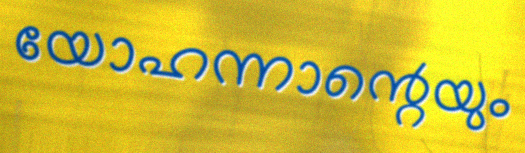
യോഹന്നാന്റെയും